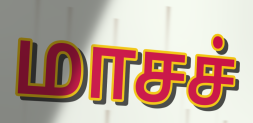
மாசச்